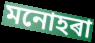
মনোহৰা